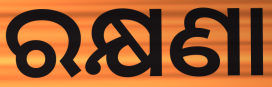
ରକ୍ଷଣା